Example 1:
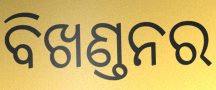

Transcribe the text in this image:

ବିଖଣ୍ଡନର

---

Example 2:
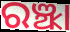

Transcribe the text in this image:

ରଞ୍ଝା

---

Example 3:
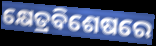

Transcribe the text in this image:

କ୍ଷେତ୍ରବିଶେଷରେ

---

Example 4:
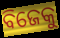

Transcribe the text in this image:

ବିଜେକୁ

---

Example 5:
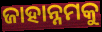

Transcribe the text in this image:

ଜାହାନ୍ନମକୁ